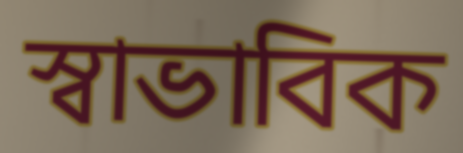
স্বাভাবিক